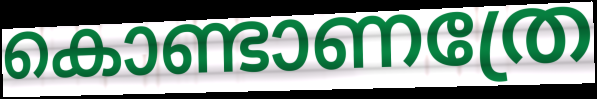
കൊണ്ടാണത്രേ